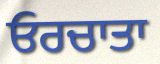
ਓਰਚਾਤਾ